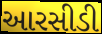
આરસીડી